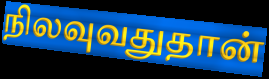
நிலவுவதுதான்